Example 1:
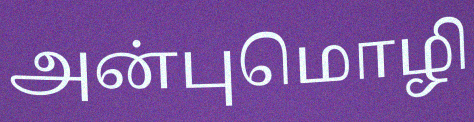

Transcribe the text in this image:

அன்புமொழி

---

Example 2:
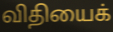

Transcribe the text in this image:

விதியைக்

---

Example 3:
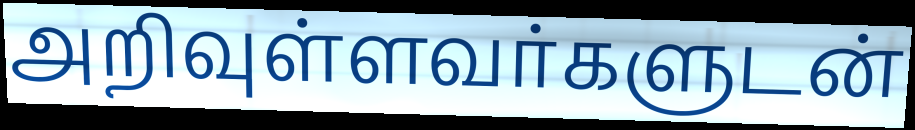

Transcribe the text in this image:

அறிவுள்ளவர்களுடன்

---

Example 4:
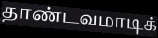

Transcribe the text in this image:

தாண்டவமாடிக்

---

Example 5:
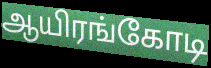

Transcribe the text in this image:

ஆயிரங்கோடி